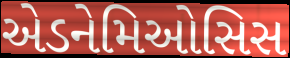
એડનેમિઓસિસ